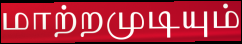
மாற்றமுடியும்